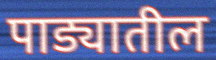
पाड्यातील